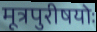
मूत्रपुरीषयोः